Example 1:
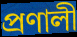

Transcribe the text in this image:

প্রণালী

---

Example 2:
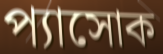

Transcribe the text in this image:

প্যাসোক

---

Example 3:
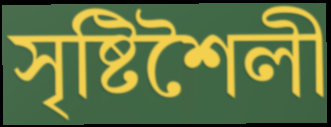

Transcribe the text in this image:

সৃষ্টিশৈলী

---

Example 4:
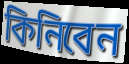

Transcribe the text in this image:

কিনিবেন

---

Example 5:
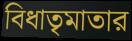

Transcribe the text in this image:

বিধাতৃমাতার